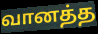
வானத்த